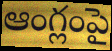
ఆంగ్లంపై